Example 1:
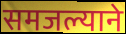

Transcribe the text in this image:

समजल्याने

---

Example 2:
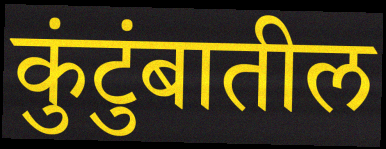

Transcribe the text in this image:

कुंटुंबातील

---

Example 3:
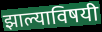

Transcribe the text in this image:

झाल्याविषयी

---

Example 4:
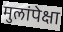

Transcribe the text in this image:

मुलांपेक्षा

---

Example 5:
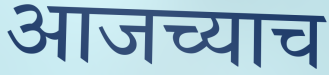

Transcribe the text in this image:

आजच्याच